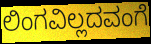
ಲಿಂಗವಿಲ್ಲದವಂಗೆ